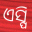
ଏସ୍ପି